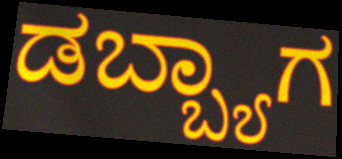
ಡಬ್ಬ್ಯಾಗ